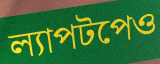
ল্যাপটপেও